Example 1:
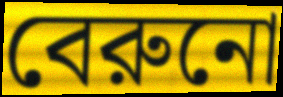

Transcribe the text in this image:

বেরুনো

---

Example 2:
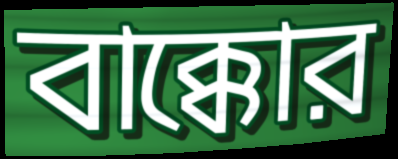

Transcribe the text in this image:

বাক্কোর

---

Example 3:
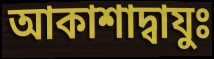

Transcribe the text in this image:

আকাশাদ্বাযুঃ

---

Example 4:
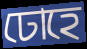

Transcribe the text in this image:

ঢোহে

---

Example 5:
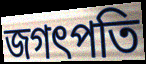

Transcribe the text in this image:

জগৎপতি